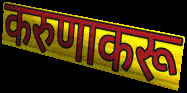
करुणाकरू